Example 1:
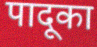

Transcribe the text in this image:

पादूका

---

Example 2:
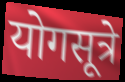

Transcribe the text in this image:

योगसूत्रे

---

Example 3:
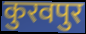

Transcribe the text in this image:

कुरवपुर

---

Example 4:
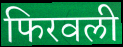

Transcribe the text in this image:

फिरवली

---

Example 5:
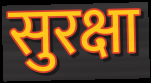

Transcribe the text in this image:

सुरक्षा